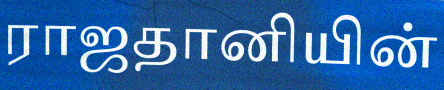
ராஜதானியின்